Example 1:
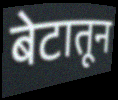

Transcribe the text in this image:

बेटातून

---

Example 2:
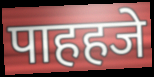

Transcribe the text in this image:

पाहहजे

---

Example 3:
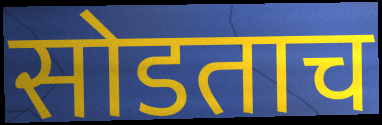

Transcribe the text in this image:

सोडताच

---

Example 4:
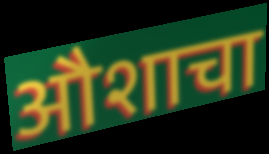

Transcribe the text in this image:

औशाचा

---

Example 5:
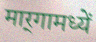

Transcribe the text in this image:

मार्गामध्यें